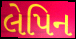
લેપિન